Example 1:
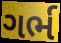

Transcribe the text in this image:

ગર્ભ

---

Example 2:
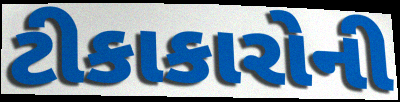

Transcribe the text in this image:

ટીકાકારોની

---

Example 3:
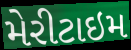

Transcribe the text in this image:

મેરીટાઇમ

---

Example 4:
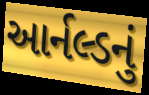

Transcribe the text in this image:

આર્નલ્ડનું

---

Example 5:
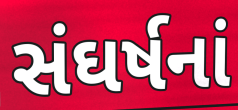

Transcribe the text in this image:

સંઘર્ષનાં